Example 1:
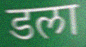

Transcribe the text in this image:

डला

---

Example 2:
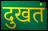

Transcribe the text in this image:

दुखतं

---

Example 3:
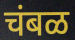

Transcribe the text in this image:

चंबळ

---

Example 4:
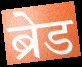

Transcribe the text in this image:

ब्रेड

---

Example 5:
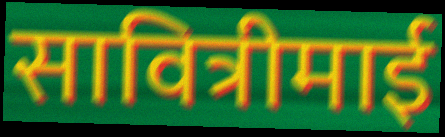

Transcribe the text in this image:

सावित्रीमाई